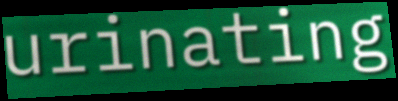
urinating